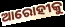
ଆରୋହୀକୁ